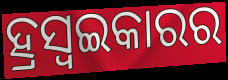
ହ୍ରସ୍ୱଇକାରର